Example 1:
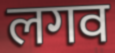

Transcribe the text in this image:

लगव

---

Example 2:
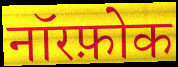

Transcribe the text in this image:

नॉरफ़ोक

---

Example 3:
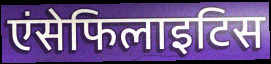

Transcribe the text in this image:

एंसेफिलाइटिस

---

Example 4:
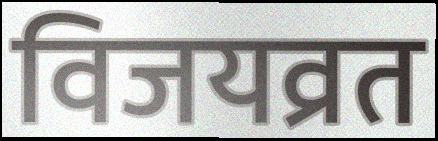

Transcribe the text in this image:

विजयव्रत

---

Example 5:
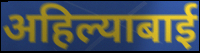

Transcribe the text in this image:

अहिल्याबाई